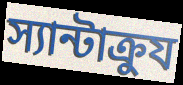
স্যান্টাক্রুয